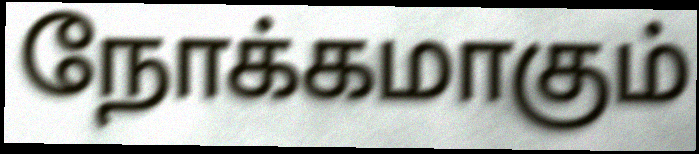
நோக்கமாகும்